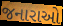
જનારાઓ